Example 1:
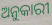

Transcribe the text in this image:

ଅନୁକାରୀ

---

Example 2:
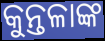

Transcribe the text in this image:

କୁନ୍ତଳାଙ୍କ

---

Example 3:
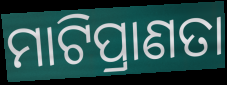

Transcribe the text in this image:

ମାଟିପ୍ରାଣତା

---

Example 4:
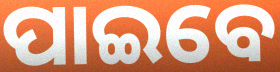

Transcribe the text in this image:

ପାଇବେ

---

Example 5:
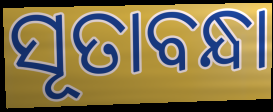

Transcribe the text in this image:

ସୂତାବନ୍ଧା